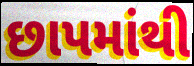
છાપમાંથી